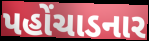
પહોંચાડનાર